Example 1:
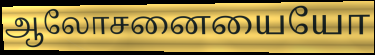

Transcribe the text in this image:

ஆலோசனையையோ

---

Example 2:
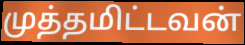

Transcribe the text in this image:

முத்தமிட்டவன்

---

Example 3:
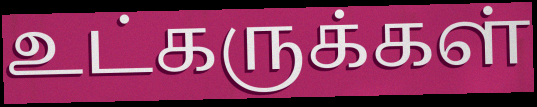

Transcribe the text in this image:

உட்கருக்கள்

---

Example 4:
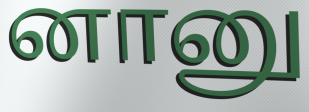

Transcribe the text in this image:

னானு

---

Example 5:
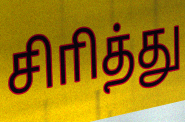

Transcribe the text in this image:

சிரித்து